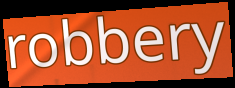
robbery